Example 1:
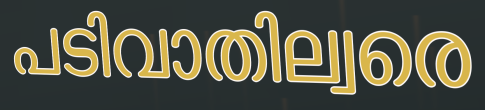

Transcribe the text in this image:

പടിവാതില്വരെ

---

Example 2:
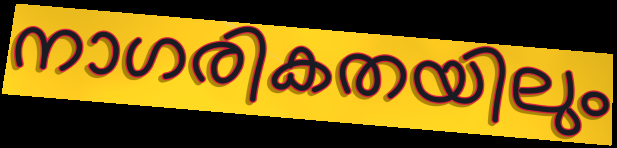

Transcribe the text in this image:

നാഗരികതയിലും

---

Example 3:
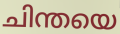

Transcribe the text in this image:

ചിന്തയെ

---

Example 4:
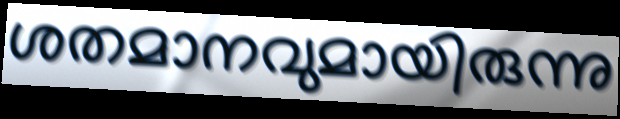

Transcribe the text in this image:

ശതമാനവുമായിരുന്നു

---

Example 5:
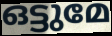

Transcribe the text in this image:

ഒട്ടുമേ